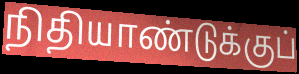
நிதியாண்டுக்குப்